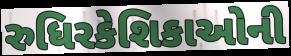
રુધિરકેશિકાઓની